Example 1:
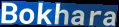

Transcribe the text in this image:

Bokhara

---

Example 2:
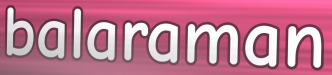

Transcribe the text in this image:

balaraman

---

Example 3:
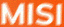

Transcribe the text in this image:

MISI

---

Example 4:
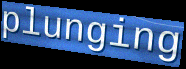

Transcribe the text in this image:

plunging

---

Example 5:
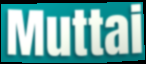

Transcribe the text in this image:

Muttai